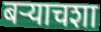
बऱ्याचशा